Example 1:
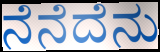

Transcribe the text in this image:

ನೆನೆದೆನು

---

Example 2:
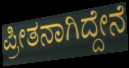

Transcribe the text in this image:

ಪ್ರೀತನಾಗಿದ್ದೇನೆ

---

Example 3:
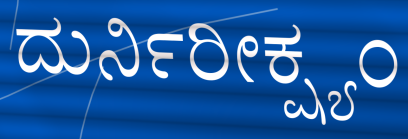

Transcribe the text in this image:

ದುರ್ನಿರೀಕ್ಷ್ಯಂ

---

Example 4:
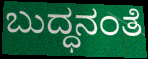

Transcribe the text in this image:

ಬುದ್ಧನಂತೆ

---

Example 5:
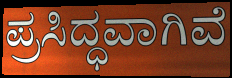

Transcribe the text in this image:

ಪ್ರಸಿದ್ಧವಾಗಿವೆ